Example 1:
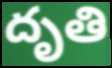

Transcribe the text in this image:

దృతి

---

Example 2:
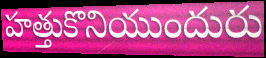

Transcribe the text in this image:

హత్తుకొనియుందురు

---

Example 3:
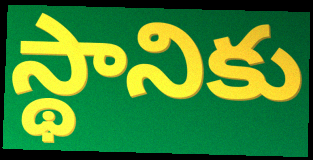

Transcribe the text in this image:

స్థానికు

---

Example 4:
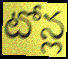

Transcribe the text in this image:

టోన్ల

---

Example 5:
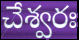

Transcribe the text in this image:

చేశ్వరః